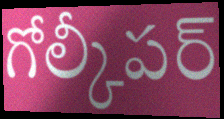
గోల్కీపర్